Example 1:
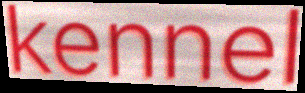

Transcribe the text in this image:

kennel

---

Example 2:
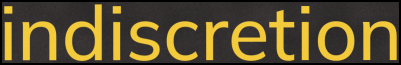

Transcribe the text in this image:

indiscretion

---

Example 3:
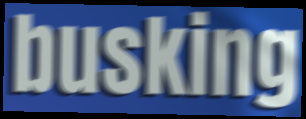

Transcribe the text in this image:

busking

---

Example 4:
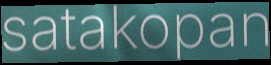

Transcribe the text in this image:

satakopan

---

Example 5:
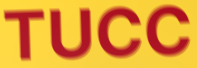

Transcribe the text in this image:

TUCC